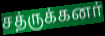
சத்ருக்கனர்